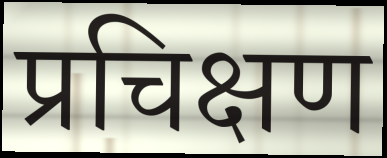
प्रचिक्षण